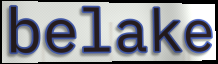
belake